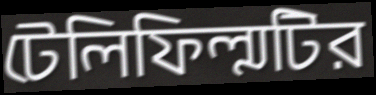
টেলিফিল্মটির